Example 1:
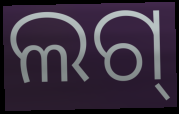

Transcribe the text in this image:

ଲଗ୍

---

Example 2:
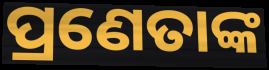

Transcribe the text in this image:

ପ୍ରଣେତାଙ୍କ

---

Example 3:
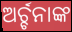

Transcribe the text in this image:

ଅର୍ଚ୍ଚନାଙ୍କ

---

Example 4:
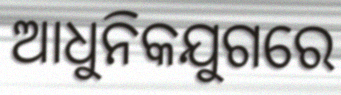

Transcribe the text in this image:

ଆଧୁନିକଯୁଗରେ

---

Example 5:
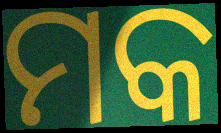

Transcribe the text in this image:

ମକ